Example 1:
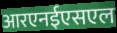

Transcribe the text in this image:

आरएनईएसएल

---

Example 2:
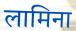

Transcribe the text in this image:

लामिना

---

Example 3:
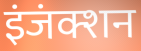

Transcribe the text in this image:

इंजंक्शन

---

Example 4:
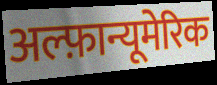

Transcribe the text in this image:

अल्फ़ान्यूमेरिक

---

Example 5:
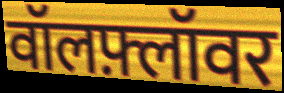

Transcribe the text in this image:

वॉलफ़्लॉवर